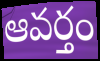
ఆవర్తం